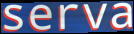
serva